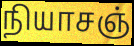
நியாசஞ்